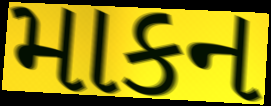
માકન